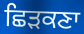
ਛਿੜਕਣਾ